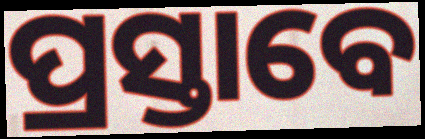
ପ୍ରସ୍ତାବେ